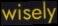
wisely